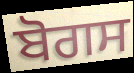
ਬੋਗਸ